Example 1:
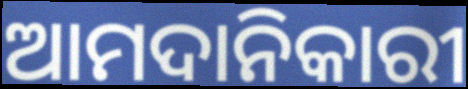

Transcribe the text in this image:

ଆମଦାନିକାରୀ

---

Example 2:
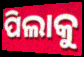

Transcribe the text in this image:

ପିଲାକୁ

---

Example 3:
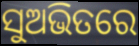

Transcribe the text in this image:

ସୁଅଭିତରେ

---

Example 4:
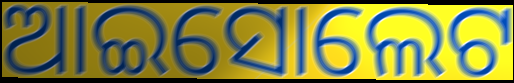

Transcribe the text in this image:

ଆଇସୋଲେଟ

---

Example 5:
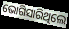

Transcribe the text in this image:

ଭୋଗିସାରିଥିଲେ